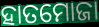
ହାତମୋଜା